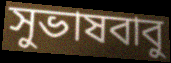
সুভাষবাবু